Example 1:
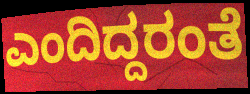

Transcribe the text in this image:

ಎಂದಿದ್ದರಂತೆ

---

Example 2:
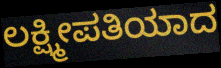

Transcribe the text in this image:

ಲಕ್ಷ್ಮೀಪತಿಯಾದ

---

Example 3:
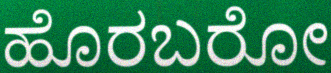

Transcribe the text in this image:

ಹೊರಬರೋ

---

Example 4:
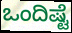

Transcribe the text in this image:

ಒಂದಿಷ್ಟೆ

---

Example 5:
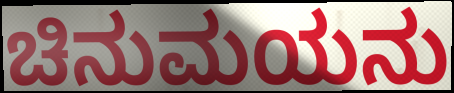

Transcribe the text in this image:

ಚಿನುಮಯನು